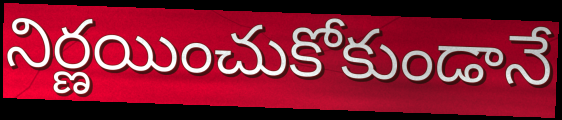
నిర్ణయించుకోకుండానే